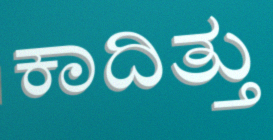
ಕಾದಿತ್ತು